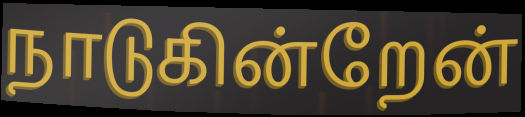
நாடுகின்றேன்